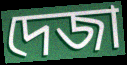
দেজা